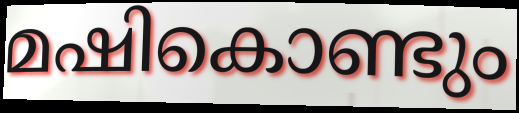
മഷികൊണ്ടും